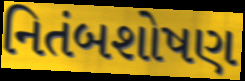
નિતંબશોષણ